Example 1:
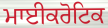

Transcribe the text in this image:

ਮਾਈਕਰੋਟਿਕ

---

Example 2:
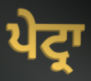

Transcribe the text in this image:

ਪੇਟ੍ਰਾ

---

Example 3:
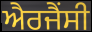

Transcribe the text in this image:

ਐਰਜੈਂਸੀ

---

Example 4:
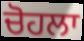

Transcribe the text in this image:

ਚੋਹਲਾ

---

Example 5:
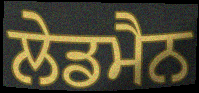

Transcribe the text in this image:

ਲੇਡਮੈਨ